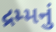
દ્રમ્મનું